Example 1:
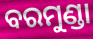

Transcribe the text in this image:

ବରମୁଣ୍ଡା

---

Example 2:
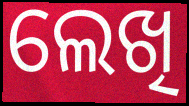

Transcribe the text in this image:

ଲେଖି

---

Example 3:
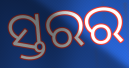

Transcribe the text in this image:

ସ୍ତରର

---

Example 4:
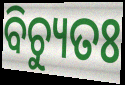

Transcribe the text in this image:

ବିଚ୍ୟୁତଃ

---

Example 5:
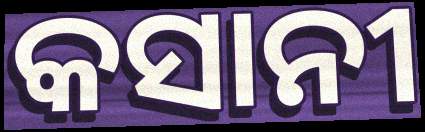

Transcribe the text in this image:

କସାନୀ